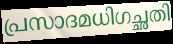
പ്രസാദമധിഗച്ഛതി